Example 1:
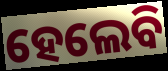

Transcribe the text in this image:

ହେଲେବି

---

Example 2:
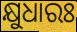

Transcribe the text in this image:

କ୍ଷୁଧାରଃ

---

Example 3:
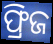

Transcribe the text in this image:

ଫ୍ରିଜ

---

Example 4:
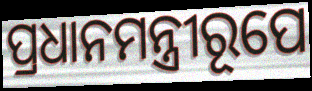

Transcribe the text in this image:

ପ୍ରଧାନମନ୍ତ୍ରୀରୂପେ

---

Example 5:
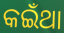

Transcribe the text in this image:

କଇଁଥା